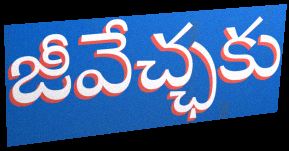
జీవేచ్ఛకు